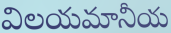
విలయమానీయ